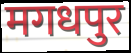
मगधपुर